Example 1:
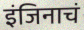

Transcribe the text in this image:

इंजिनाचं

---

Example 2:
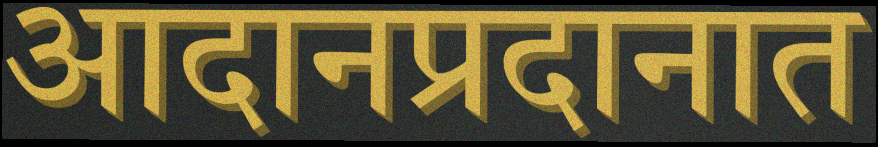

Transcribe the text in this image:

आदानप्रदानात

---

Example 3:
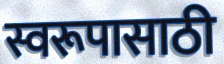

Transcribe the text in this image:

स्वरूपासाठी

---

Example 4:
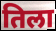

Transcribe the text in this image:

तिला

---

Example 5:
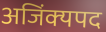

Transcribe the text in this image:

अजिंक्यपद